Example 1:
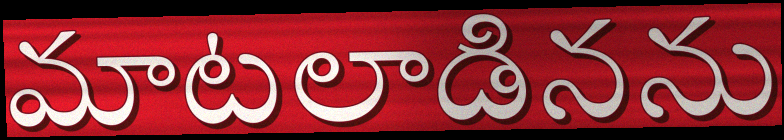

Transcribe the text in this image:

మాటలాడినను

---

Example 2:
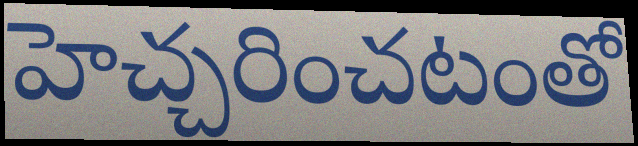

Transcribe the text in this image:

హెచ్చరించటంతో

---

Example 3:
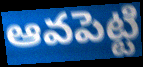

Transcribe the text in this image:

ఆవపెట్టి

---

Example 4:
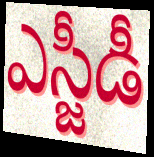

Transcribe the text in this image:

ఎస్జీడీ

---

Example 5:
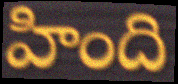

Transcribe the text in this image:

హింది